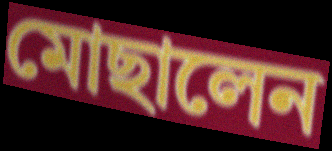
মোছালেন